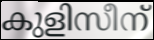
കുളിസീന്